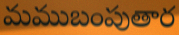
మముబంపుతార